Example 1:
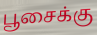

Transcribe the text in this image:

பூசைக்கு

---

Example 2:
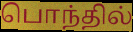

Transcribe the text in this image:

பொந்தில்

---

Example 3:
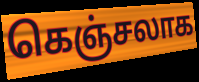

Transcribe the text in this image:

கெஞ்சலாக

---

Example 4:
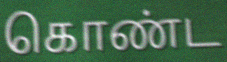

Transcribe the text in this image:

கொண்ட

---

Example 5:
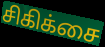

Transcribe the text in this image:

சிகிக்சை